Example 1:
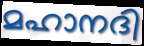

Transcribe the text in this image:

മഹാനദി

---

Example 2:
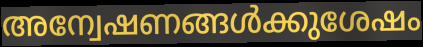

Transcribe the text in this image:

അന്വേഷണങ്ങൾക്കുശേഷം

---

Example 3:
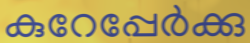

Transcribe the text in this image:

കുറേപ്പേർക്കു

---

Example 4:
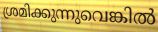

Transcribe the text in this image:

ശ്രമിക്കുന്നുവെങ്കിൽ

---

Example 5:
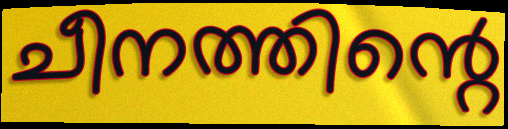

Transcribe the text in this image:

ചീനത്തിന്റെ